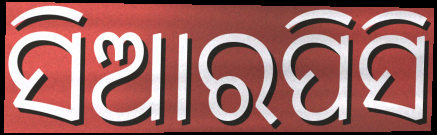
ସିଆରପିସି